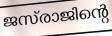
ജസ്‌രാജിന്റെ